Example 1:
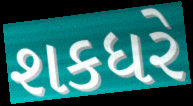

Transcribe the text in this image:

શકધરે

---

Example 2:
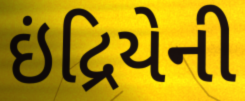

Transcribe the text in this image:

ઇંદ્રિયેની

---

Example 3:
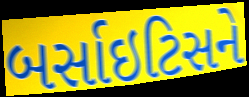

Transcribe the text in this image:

બર્સાઇટિસને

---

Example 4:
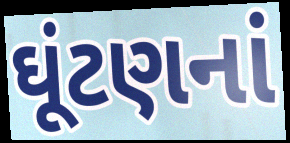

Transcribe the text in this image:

ઘૂંટણનાં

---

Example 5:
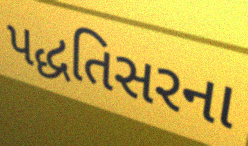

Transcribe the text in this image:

પદ્ધતિસરના